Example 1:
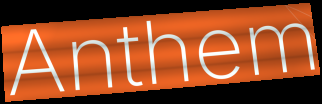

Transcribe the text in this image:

Anthem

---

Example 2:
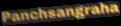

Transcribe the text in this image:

Panchsangraha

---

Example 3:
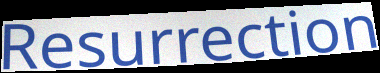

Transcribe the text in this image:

Resurrection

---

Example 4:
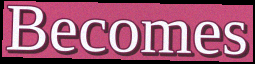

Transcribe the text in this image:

Becomes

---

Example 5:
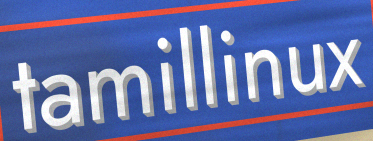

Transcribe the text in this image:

tamillinux